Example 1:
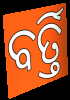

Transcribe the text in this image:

ବର୍ତ୍ତି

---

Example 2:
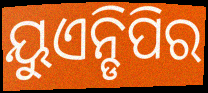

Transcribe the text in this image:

ୟୁଏନ୍ଡିପିର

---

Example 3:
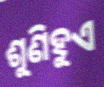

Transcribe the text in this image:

ଶୁଣିହୁଏ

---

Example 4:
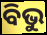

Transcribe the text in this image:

ବିଭୁ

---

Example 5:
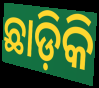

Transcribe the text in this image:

ଛାଡ଼ିକି